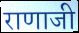
राणाजी